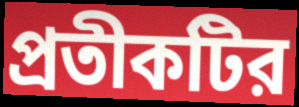
প্রতীকটির